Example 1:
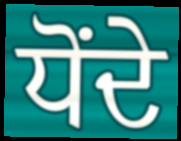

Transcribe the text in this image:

ਧੋਂਦੇ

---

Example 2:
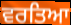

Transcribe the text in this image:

ਵਰਤਿਆ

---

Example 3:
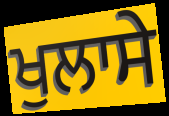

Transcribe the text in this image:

ਖੁਲਾਸੇ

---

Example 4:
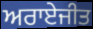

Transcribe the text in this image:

ਅਰਾਏਜੀਤ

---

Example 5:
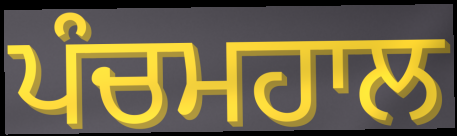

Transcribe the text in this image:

ਪੰਚਮਹਾਲ